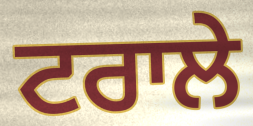
ਟਰਾਲੇ